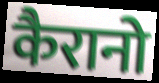
कैरानो